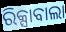
ରିକ୍ସାବାଲା